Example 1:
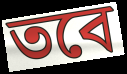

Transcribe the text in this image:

তবে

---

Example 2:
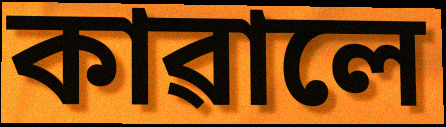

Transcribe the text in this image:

কাৱালে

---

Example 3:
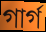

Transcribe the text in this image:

গাৰ্গ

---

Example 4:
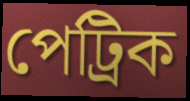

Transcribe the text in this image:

পেট্ৰিক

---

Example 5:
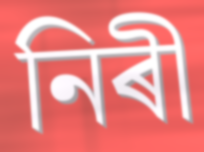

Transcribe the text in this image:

নিৰী